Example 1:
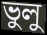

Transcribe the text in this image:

ভুলু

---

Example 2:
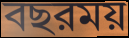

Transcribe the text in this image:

বছরময়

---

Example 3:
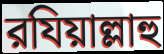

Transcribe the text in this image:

রযিয়াল্লাহু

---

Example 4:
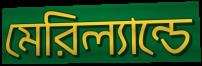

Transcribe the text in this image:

মেরিল্যান্ডে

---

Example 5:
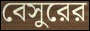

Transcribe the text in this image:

বেসুরের